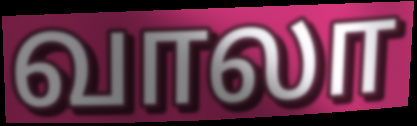
வாலா